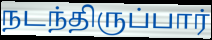
நடந்திருப்பார்